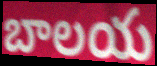
బాలయ